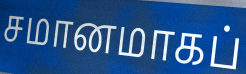
சமானமாகப்